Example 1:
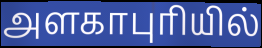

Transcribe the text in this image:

அளகாபுரியில்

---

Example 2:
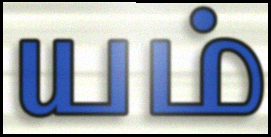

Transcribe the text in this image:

யம்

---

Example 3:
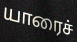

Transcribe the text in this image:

யாரைச்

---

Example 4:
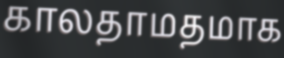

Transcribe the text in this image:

காலதாமதமாக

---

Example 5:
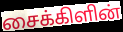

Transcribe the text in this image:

சைக்கிளின்